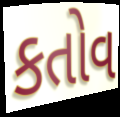
કતોવ